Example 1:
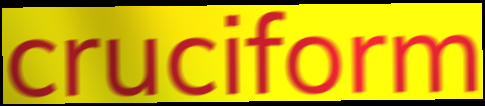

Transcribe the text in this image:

cruciform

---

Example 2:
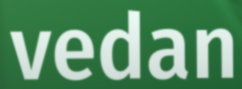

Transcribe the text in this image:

vedan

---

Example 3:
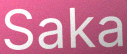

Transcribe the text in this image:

Saka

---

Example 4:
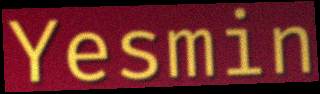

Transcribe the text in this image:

Yesmin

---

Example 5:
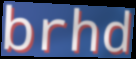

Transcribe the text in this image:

brhd